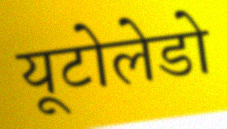
यूटोलेडो